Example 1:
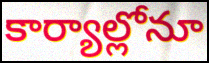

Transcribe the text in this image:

కార్యాల్లోనూ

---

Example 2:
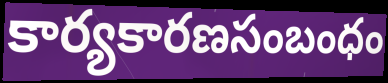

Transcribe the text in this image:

కార్యకారణసంబంధం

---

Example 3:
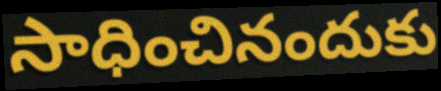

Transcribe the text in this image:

సాధించినందుకు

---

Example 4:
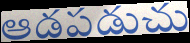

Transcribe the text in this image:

ఆడపడుచు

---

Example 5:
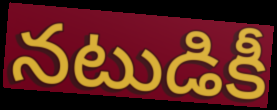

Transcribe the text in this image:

నటుడికీ